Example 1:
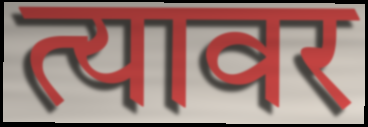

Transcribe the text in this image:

त्‍यावर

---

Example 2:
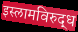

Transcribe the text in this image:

इस्लामविरुद्ध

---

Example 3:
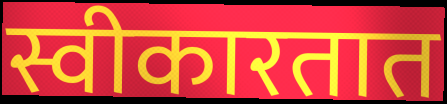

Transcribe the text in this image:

स्वीकारतात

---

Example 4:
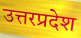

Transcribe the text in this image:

उत्तरप्रदेश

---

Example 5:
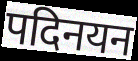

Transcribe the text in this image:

पदिनयन